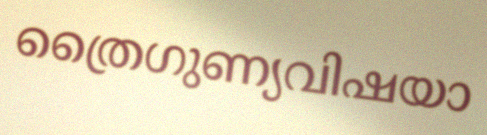
ത്രൈഗുണ്യവിഷയാ